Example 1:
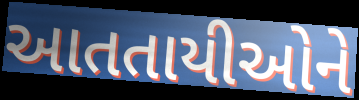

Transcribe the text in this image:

આતતાયીઓને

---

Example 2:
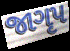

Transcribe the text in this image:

જાગૃપ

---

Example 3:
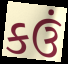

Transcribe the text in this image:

કઉં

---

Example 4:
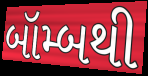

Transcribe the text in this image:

બૉમ્બથી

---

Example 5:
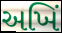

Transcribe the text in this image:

અખિં